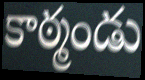
కాఠ్మండు